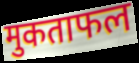
मुकताफल